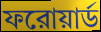
ফরোয়ার্ড